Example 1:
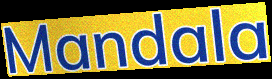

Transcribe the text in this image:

Mandala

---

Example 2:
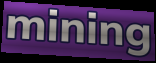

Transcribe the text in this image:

mining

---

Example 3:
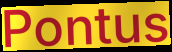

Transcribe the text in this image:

Pontus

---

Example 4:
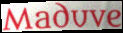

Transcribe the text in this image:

Maduve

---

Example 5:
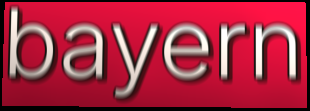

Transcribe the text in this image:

bayern